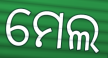
ମେଲ